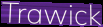
Trawick